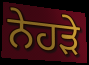
ਨੇਹੜੇ